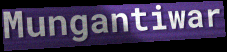
Mungantiwar